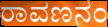
ರಾವಣನಂ